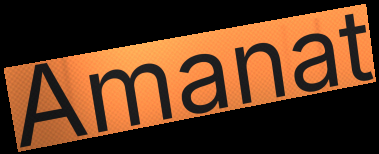
Amanat